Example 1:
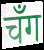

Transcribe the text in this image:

चँग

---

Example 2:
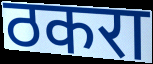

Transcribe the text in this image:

ठकरा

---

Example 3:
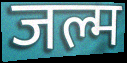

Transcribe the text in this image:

जल्म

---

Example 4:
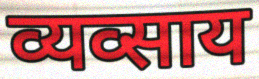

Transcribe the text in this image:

व्यव्साय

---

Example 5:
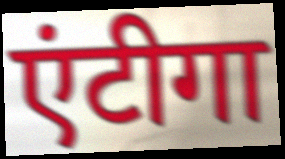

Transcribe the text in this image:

एंटीगा